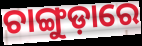
ଚାଙ୍ଗୁଡ଼ାରେ